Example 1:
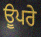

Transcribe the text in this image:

ਊਪਰੇ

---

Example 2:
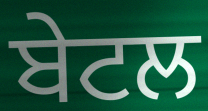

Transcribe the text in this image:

ਬੇਟਲ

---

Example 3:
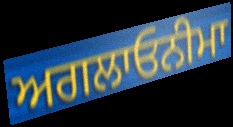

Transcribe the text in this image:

ਅਗਲਾਓਨੀਮਾ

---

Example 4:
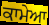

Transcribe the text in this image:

ਕਾਮੇਆ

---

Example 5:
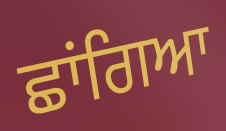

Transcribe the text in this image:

ਛਾਂਗਿਆ